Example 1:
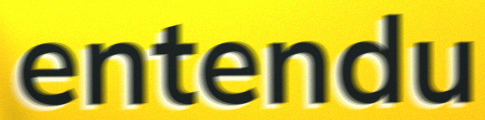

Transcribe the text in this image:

entendu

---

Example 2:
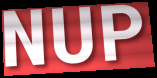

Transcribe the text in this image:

NUP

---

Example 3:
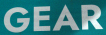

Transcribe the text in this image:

GEAR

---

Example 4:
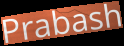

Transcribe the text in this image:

Prabash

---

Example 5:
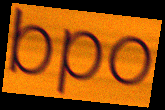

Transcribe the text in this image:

bpo